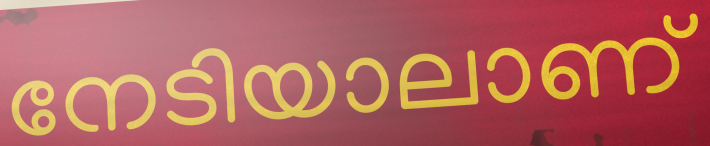
നേടിയാലാണ്